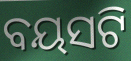
ବୟସଟି